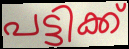
പട്ടിക്ക്